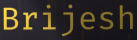
Brijesh